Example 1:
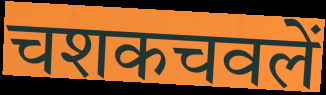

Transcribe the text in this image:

चशकचवलें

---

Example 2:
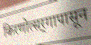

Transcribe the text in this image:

किरणोत्सर्गापासून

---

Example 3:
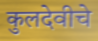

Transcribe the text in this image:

कुलदेवीचे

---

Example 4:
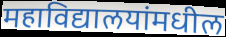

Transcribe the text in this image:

महाविद्यालयांमधील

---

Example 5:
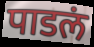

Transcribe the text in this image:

पाडलं